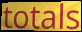
totals